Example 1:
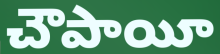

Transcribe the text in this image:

చౌపాయీ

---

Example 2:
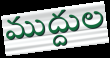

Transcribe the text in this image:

ముద్దుల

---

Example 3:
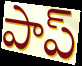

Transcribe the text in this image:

పాప్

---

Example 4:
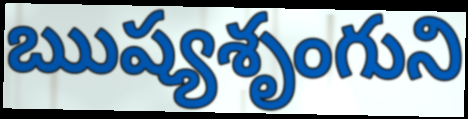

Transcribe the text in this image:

ఋష్యశృంగుని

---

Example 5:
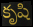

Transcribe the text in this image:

కృషి